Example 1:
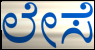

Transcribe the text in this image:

ಲೇಸೆ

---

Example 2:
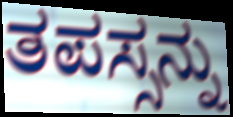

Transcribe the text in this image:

ತಪಸ್ಸನ್ನು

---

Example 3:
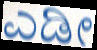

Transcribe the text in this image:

ಎಡೀ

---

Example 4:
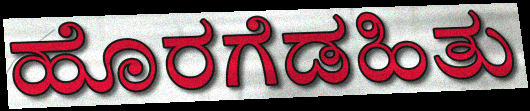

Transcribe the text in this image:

ಹೊರಗೆಡಹಿತು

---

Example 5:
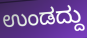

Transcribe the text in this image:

ಉಂಡದ್ದು